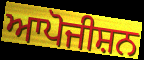
ਆਪੋਜੀਸ਼ਨ